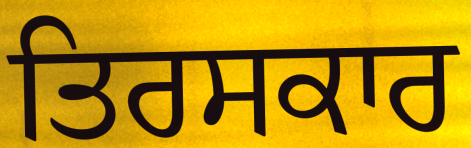
ਤਿਰਸਕਾਰ